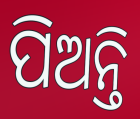
ପିଅନ୍ତି